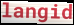
langid